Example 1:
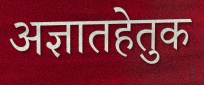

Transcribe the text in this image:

अज्ञातहेतुक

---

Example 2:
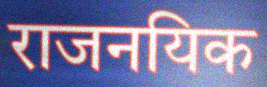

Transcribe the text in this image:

राजनयिक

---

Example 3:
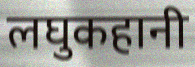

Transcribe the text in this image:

लघुकहानी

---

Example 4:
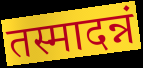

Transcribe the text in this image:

तस्मादन्नं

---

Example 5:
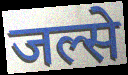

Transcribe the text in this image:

जल्से